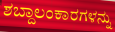
ಶಬ್ದಾಲಂಕಾರಗಳನ್ನು